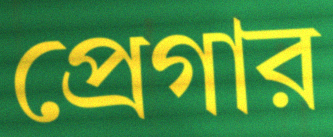
প্রেগার